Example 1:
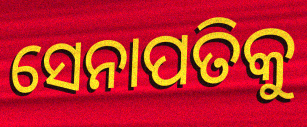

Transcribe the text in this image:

ସେନାପତିକୁ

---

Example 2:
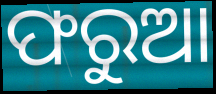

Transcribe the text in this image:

ଫରୁଆ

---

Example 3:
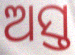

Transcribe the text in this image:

ଅସ୍ତ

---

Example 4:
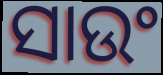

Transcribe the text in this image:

ସାଉଂ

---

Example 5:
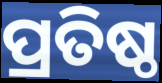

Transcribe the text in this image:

ପ୍ରତିଷ୍ଠ